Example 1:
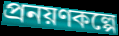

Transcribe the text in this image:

প্রনয়ণকল্পে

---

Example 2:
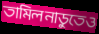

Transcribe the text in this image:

তামিলনাডুতেও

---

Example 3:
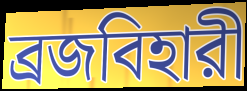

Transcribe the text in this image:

ব্রজবিহারী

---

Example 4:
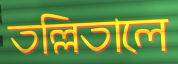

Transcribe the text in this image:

তল্লিতালে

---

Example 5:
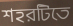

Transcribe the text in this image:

শহরটিতে